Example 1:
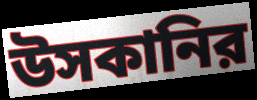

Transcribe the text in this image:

উসকানির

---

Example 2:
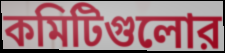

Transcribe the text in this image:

কমিটিগুলোর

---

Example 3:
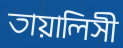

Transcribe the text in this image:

তায়ালিসী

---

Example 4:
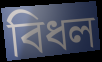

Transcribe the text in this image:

বিধল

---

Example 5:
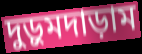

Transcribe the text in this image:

দুড়ুমদাড়াম